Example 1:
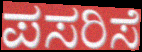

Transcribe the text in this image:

ಪಸರಿಸೆ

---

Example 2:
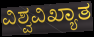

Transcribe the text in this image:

ವಿಶ್ವವಿಖ್ಯಾತ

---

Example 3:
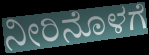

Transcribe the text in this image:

ನೀರಿನೊಳಗೆ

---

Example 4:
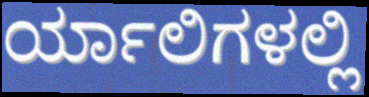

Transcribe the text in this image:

ರ್ಯಾಲಿಗಳಲ್ಲಿ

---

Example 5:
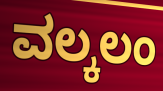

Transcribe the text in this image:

ವಲ್ಕಲಂ